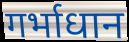
गर्भाधान